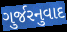
ગુર્જરનુવાદ